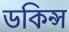
ডকিন্স